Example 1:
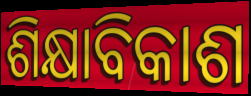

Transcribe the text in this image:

ଶିକ୍ଷାବିକାଶ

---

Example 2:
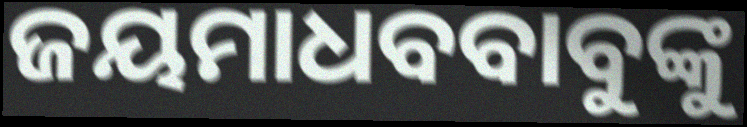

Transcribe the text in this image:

ଜୟମାଧବବାବୁଙ୍କୁ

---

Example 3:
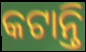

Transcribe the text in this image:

କଟାନ୍ତି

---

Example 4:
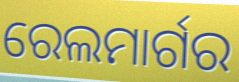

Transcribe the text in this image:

ରେଲମାର୍ଗର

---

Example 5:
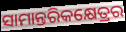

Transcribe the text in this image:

ସାମାନ୍ତରିକକ୍ଷେତ୍ରର